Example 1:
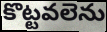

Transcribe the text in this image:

కొట్టవలెను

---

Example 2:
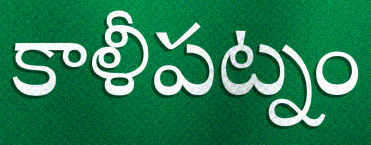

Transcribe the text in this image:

కాళీపట్నం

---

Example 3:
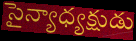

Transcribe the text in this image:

సైన్యాధ్యక్షుడు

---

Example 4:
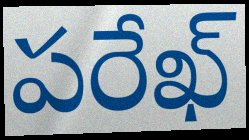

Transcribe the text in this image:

పరేఖ్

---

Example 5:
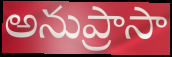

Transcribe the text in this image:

అనుప్రాసా